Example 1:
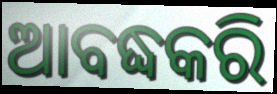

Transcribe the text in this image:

ଆବଦ୍ଧକରି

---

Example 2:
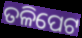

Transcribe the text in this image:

ତଳିପେଟ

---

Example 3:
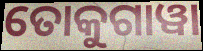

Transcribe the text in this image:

ତୋକୁଗାୱା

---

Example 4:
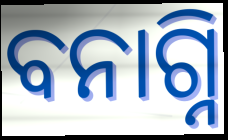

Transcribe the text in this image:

ବନାଗ୍ନି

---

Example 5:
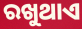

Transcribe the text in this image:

ରଖୁଥାଏ